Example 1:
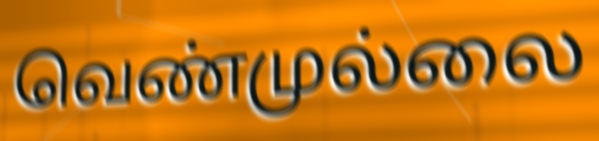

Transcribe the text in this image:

வெண்முல்லை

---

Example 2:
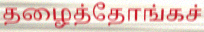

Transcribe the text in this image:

தழைத்தோங்கச்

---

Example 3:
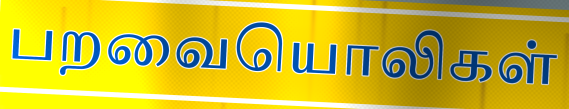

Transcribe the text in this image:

பறவையொலிகள்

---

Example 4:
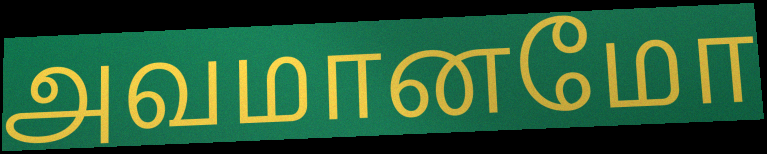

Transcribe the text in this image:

அவமானமோ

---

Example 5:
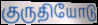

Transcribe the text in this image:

குருதியோடு